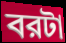
বরটা